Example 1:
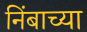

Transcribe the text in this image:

निंबाच्या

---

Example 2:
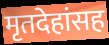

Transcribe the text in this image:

मृतदेहांसह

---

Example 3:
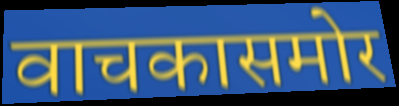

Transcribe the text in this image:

वाचकासमोर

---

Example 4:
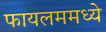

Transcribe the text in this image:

फायलममध्ये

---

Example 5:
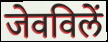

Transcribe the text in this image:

जेवविलें